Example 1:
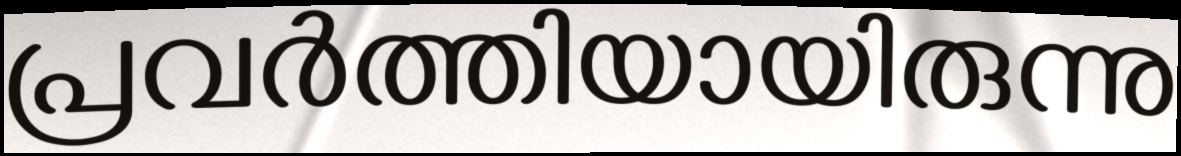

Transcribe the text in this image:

പ്രവർത്തിയായിരുന്നു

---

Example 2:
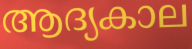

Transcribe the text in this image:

ആദ്യകാല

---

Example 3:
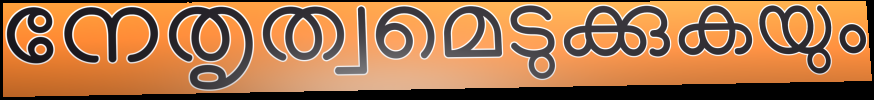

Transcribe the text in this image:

നേതൃത്വമെടുക്കുകയും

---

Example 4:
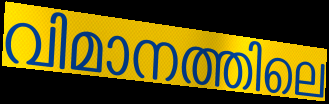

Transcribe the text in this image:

വിമാനത്തിലെ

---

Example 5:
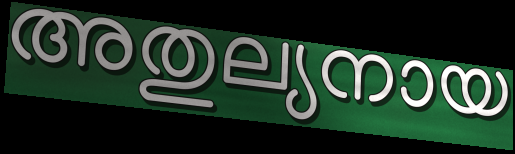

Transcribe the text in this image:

അതുല്യനായ